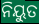
ନିୟୁତ